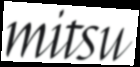
mitsu